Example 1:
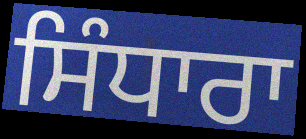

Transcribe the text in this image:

ਸਿੰਧਾਰਾ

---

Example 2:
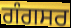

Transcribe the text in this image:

ਗੰਗਸਰ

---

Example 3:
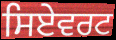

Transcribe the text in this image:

ਸਿਏਵਰਟ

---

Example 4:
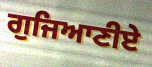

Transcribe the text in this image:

ਗੁਜਿਆਣੀਏ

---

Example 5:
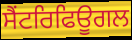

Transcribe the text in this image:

ਸੈਂਟਰਿਫਿਊਗਲ